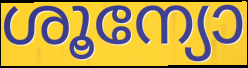
ശൂന്യോ